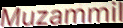
Muzammil